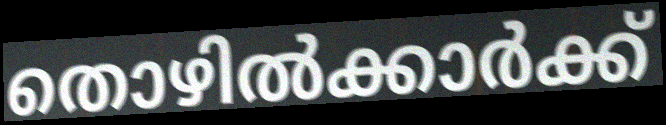
തൊഴിൽക്കാർക്ക്